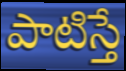
పాటిస్తే